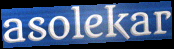
asolekar